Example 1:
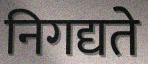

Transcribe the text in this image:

निगद्यते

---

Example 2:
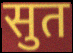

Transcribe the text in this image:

सुत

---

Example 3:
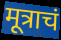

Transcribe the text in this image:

मूत्राचं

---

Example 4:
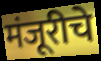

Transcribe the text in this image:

मंजूरीचे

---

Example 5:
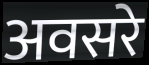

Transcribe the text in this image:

अवसरे